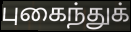
புகைந்துக்